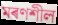
মৰণশীল